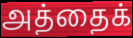
அத்தைக்